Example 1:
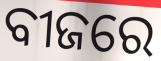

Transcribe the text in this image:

ବୀଜରେ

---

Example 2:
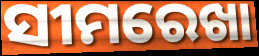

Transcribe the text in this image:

ସୀମରେଖା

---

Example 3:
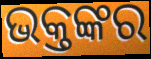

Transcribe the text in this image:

ଭକ୍ତଙ୍କର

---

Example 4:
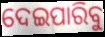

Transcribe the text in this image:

ଦେଇପାରିବୁ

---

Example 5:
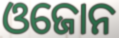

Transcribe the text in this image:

ଓଜୋନ